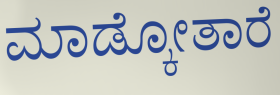
ಮಾಡ್ಕೋತಾರೆ